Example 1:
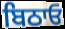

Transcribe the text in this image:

ਬਿਠਾਓ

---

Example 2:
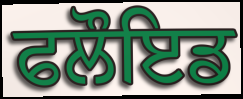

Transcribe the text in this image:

ਫਲੌਇਡ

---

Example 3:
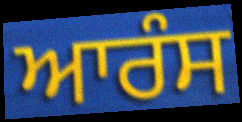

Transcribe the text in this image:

ਆਰੰਸ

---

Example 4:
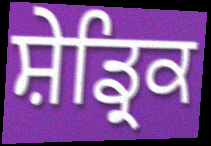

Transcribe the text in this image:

ਸ਼ੇਡ੍ਰਿਕ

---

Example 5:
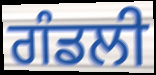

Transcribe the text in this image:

ਗੰਡਲੀ